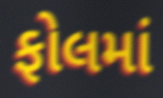
ફોલમાં